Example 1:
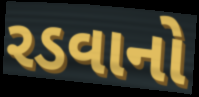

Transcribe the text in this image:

રડવાનો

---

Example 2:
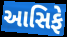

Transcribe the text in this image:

આસિફે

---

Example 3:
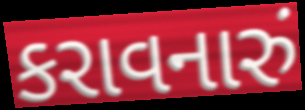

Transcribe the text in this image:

કરાવનારું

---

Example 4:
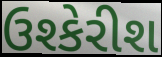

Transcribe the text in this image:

ઉશ્કેરીશ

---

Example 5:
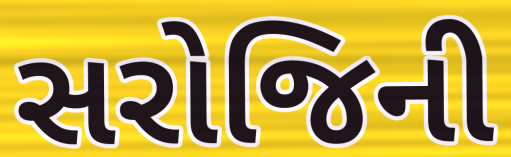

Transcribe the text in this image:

સરોજિની